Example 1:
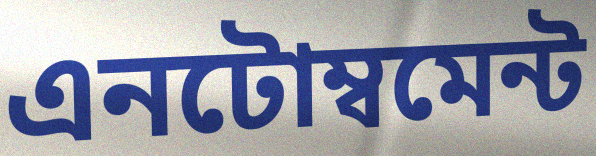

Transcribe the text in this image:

এনটোম্বমেন্ট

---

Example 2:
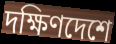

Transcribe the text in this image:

দক্ষিণদেশে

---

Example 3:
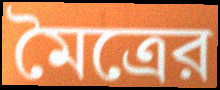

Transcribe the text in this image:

মৈত্রের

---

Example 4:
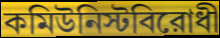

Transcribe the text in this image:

কমিউনিস্টবিরোধী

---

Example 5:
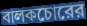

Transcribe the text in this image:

বালকচোরের